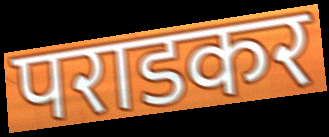
पराडकर